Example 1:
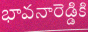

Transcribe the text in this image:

భావనారెడ్డికి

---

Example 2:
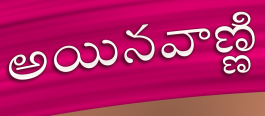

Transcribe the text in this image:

అయినవాణ్ణి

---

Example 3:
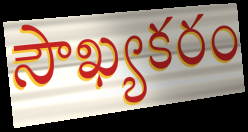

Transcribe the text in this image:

సౌఖ్యకరం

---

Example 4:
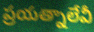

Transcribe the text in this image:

ప్రయత్నాలేవీ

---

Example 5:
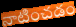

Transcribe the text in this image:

నాటించడం